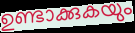
ഉണ്ടാക്കുകയും